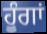
ਹੂੰਗਾਂ